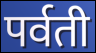
पर्वती